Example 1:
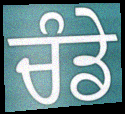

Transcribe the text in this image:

ਚੰਡੇ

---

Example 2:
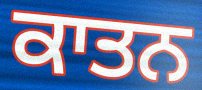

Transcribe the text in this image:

ਕਾਤਨ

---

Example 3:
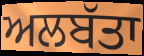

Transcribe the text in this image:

ਅਲਬੱਤਾ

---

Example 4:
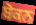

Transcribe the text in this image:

ਬੋਕਨ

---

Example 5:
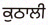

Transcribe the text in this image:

ਕੁਠਾਲੀ